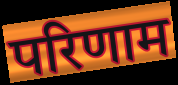
परिणाम